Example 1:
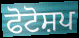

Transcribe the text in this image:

ਫੋਟੋਸ਼ਪ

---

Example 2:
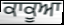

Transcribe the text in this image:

ਕਾਕੂਆ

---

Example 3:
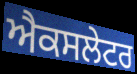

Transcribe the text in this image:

ਐਕਸਲੇਟਰ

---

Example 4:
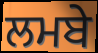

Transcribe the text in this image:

ਲਮਬੇ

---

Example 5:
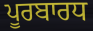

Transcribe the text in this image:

ਪੂਰਬਾਰਧ